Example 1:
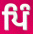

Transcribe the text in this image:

ਪਿੰ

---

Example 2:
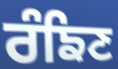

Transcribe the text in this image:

ਰੰਙਿਣ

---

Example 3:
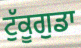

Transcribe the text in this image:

ਟੁੱਕੂਗੁਡਾ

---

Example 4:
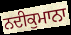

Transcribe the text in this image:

ਨਦੀਕੁਮਾਨਾ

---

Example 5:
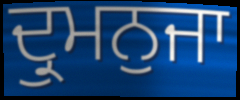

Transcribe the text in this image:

ਦ੍ਰੁਮਨੁਜਾ